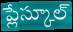
ప్లేస్కూల్